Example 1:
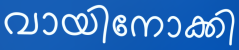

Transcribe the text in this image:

വായിനോക്കി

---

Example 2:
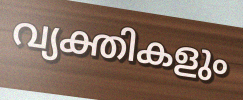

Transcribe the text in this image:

വ്യക്തികളും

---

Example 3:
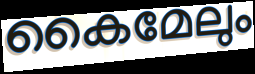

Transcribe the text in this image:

കൈമേലും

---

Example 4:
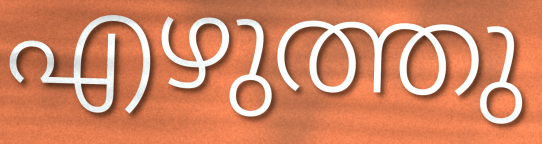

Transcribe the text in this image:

എഴുത്തു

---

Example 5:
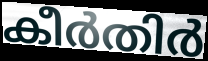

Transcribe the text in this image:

കീർതിർ